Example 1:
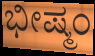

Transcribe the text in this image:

ಭೀಷ್ಮಂ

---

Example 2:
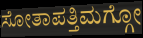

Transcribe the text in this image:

ಸೋತಾಪತ್ತಿಮಗ್ಗೋ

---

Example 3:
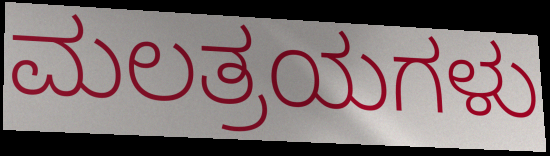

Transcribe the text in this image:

ಮಲತ್ರಯಗಳು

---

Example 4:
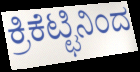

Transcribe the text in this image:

ಕ್ರಿಕೆಟ್ಟಿನಿಂದ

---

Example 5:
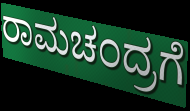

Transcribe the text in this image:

ರಾಮಚಂದ್ರಗೆ